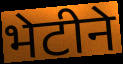
भेटीने